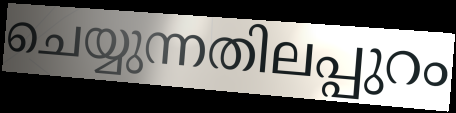
ചെയ്യുന്നതിലപ്പുറം